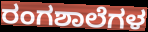
ರಂಗಶಾಲೆಗಳ